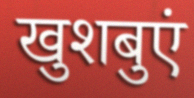
खुशबुएं